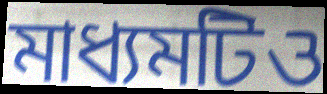
মাধ্যমটিও